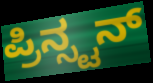
ಪ್ರಿನ್ಸ್ಟನ್